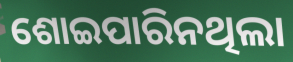
ଶୋଇପାରିନଥିଲା